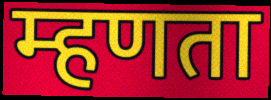
म्हणता